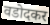
वडोदकर